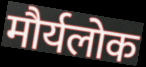
मौर्यलोक